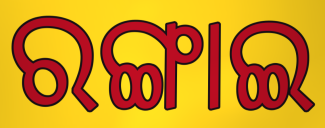
ରଙ୍ଗାଇ